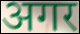
अगर